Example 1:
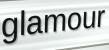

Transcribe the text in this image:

glamour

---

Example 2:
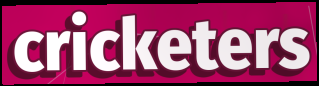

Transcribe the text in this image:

cricketers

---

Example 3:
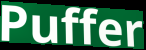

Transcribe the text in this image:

Puffer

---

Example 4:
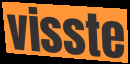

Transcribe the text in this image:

visste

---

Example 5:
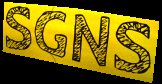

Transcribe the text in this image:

SGNS